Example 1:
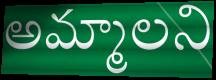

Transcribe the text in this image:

అమ్మాలని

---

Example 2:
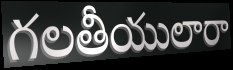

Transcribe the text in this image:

గలతీయులారా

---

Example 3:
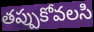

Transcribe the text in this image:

తప్పుకోవలసి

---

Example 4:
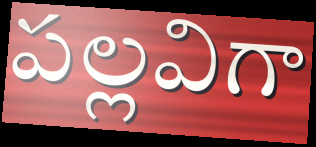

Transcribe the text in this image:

పల్లవిగా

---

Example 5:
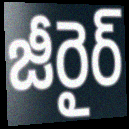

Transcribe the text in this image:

జీరైర్